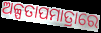
ଅଳ୍ପତାପମାତ୍ରାରେ